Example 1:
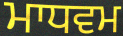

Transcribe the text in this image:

ਮਾਧਵਮ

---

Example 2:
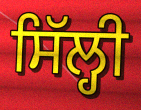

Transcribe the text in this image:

ਸਿੱਲ੍ਹੀ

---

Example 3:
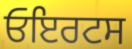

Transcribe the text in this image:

ਓਇਰਟਸ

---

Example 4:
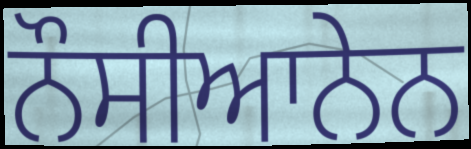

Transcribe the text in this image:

ਨੌਸੀਆਨੇਨ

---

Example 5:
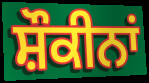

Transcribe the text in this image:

ਸ਼ੌਕੀਨਾਂ